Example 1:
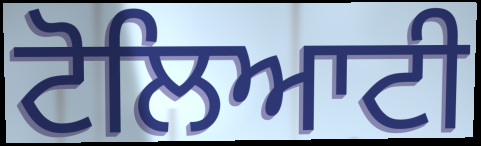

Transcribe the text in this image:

ਟੋਲਿਆਟੀ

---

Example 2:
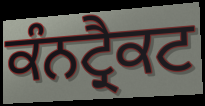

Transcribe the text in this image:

ਕੰਨਟ੍ਰੈਕਟ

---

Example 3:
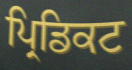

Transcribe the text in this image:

ਪ੍ਰਿਡਿਕਟ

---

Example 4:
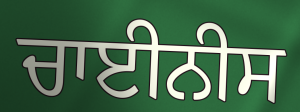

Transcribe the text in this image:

ਚਾਈਨੀਸ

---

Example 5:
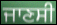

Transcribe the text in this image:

ਜਾਣਸੀ